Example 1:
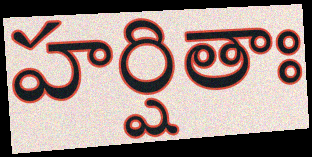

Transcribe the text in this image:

హర్షితాః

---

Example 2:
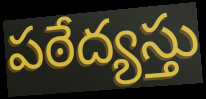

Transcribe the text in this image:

పఠేద్యస్తు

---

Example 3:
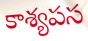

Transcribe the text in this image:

కాశ్యపస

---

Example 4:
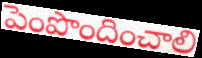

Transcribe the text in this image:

పెంపొందించాలి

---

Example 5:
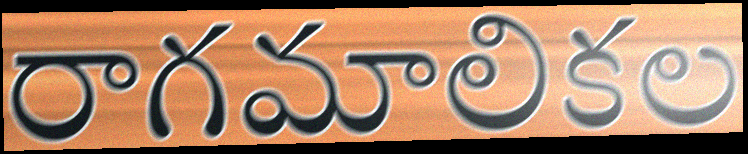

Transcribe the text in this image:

రాగమాలికల